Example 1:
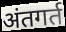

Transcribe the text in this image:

अंतगर्त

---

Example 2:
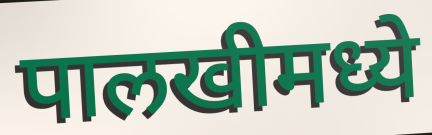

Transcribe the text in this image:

पालखीमध्ये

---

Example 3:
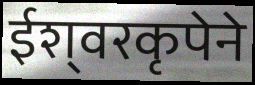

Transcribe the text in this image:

ईश्वरकृपेने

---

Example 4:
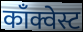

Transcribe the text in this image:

काँक्वेस्ट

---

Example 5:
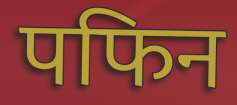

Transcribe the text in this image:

पफिन